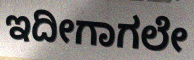
ಇದೀಗಾಗಲೇ